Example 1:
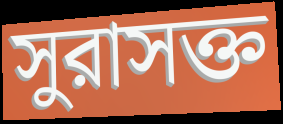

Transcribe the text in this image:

সুরাসক্ত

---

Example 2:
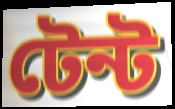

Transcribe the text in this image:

টেন্ট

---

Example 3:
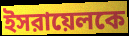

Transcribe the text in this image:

ইসরায়েলকে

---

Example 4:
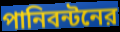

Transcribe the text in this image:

পানিবন্টনের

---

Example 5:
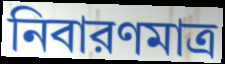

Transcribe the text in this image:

নিবারণমাত্র